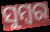
ସୁମ୍ବର